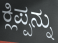
ಕ್ಲಿಪ್ಪನ್ನು